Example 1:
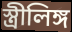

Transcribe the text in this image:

স্ত্ৰীলিঙ্গ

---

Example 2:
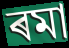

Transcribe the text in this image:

ৰমা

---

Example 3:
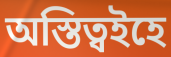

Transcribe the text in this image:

অস্তিত্বইহে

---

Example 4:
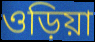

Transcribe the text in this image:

ওড়িয়া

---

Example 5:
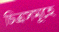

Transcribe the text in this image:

চিত্ৰসমূহে